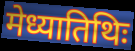
मेध्यातिथिः